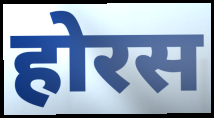
होरस